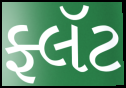
ફ્લૅટ